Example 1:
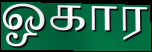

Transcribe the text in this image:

ஓகார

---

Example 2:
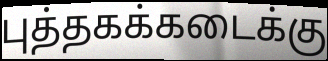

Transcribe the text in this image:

புத்தகக்கடைக்கு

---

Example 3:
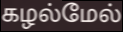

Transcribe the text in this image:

கழல்மேல்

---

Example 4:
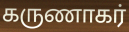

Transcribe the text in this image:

கருணாகர்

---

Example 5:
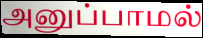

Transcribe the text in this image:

அனுப்பாமல்